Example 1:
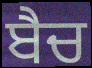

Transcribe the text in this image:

ਬੈਚ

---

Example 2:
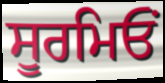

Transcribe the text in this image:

ਸੂਰਮਿਓਂ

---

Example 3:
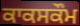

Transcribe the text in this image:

ਕਾਕਸਕੌਮ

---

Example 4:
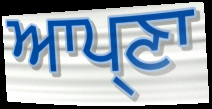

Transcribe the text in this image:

ਆਪ੍ਣਾ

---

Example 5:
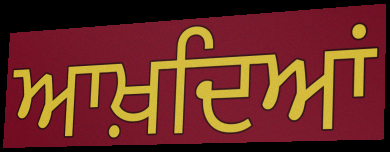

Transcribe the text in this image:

ਆਖ਼ਦਿਆਂ